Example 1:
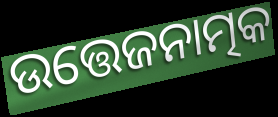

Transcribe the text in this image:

ଉତ୍ତେଜନାତ୍ମକ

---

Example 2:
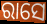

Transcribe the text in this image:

ରାସେ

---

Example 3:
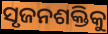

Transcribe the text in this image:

ସୃଜନଶକ୍ତିକୁ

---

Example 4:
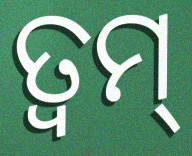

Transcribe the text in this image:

ତ୍ଵମ୍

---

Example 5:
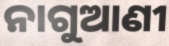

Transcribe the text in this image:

ନାଗୁଆଣୀ